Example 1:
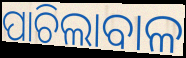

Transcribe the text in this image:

ପାଚିଲାବାଳ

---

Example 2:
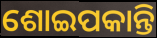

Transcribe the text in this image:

ଶୋଇପକାନ୍ତି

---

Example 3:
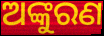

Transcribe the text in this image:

ଅଙ୍କୁରଣ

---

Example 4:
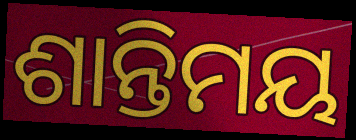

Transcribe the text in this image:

ଶାନ୍ତିମୟ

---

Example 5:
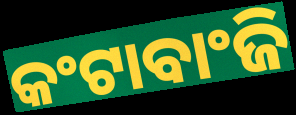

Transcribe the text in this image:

କଂଟାବାଂଜି